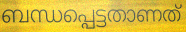
ബന്ധപ്പെട്ടതാണത്